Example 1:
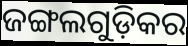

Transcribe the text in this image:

ଜଙ୍ଗଲଗୁଡ଼ିକର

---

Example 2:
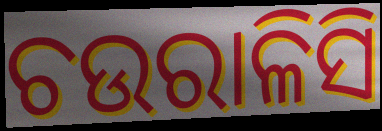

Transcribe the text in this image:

ଚଉରାଳିସି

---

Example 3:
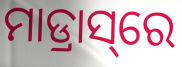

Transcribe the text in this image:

ମାଡ୍ରାସ୍‌ରେ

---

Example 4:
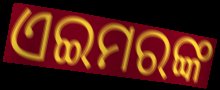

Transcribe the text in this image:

ଏଇମରଙ୍କ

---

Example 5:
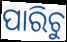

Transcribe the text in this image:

ପାରିଚୁ